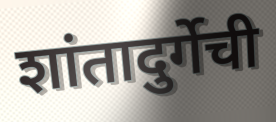
शांतादुर्गेची